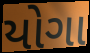
યોગા